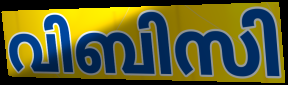
വിബിസി